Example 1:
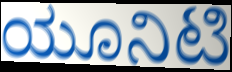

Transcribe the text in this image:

ಯೂನಿಟಿ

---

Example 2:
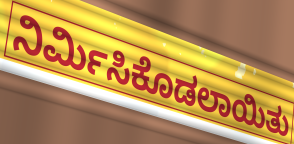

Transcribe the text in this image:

ನಿರ್ಮಿಸಿಕೊಡಲಾಯಿತು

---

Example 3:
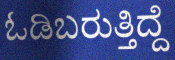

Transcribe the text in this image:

ಓಡಿಬರುತ್ತಿದ್ದೆ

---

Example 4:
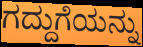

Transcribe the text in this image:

ಗದ್ದುಗೆಯನ್ನು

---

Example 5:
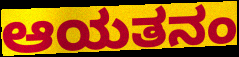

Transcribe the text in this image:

ಆಯತನಂ